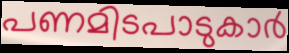
പണമിടപാടുകാർ